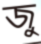
জু